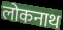
लोकनाथ